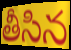
తీసిన